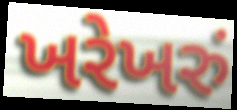
ખરેખરું